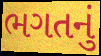
ભગતનું